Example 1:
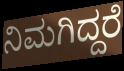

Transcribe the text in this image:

ನಿಮಗಿದ್ದರೆ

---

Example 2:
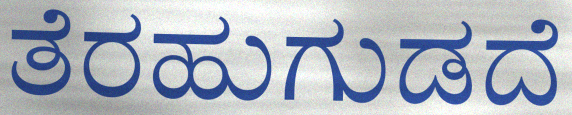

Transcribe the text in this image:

ತೆರಹುಗುಡದೆ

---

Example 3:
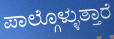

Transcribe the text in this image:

ಪಾಲ್ಗೊಳ್ಳುತ್ತಾರೆ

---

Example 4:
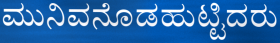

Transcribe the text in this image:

ಮುನಿವನೊಡಹುಟ್ಟಿದರು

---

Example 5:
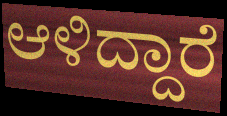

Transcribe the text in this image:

ಆಳಿದ್ದಾರೆ